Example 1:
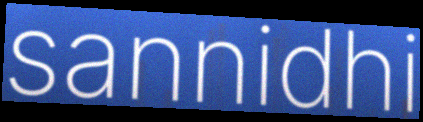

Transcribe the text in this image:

sannidhi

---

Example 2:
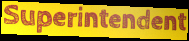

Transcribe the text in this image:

Superintendent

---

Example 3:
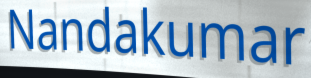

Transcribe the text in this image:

Nandakumar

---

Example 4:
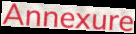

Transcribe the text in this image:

Annexure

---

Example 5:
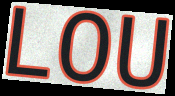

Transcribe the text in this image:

LOU